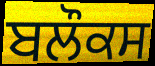
ਬਲੌਕਸ